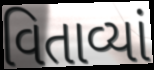
વિતાવ્યાં